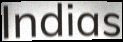
Indias